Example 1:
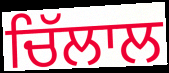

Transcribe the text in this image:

ਚਿੱਲਾਲ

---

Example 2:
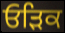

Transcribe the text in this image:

ਓੜਿਕ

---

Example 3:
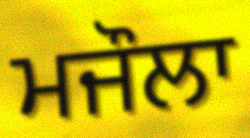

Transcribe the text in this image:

ਮਜੌਲਾ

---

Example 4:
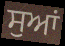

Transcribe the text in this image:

ਸੁਆਂ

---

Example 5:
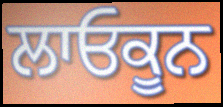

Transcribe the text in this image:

ਲਾਓਕੂਨ